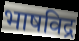
भाषविद्र